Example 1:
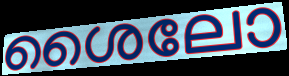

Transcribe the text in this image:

ശൈലോ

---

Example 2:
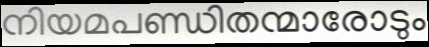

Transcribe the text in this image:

നിയമപണ്ഡിതന്മാരോടും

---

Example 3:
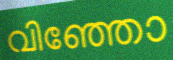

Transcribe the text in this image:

വിഞ്ഞോ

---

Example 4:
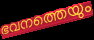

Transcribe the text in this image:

ഭവനത്തെയും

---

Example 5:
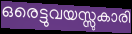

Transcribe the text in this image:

ഒരെട്ടുവയസ്സുകാരി